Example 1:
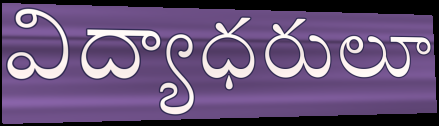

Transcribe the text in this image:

విద్యాధరులూ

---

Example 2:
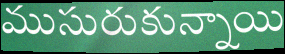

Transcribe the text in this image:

ముసురుకున్నాయి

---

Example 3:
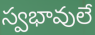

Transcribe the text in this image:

స్వభావులే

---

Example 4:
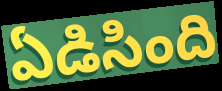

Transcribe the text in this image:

ఏడిసింది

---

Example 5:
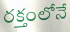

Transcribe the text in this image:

రక్తంలోనే